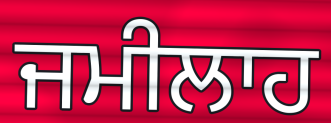
ਜਮੀਲਾਹ